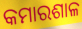
କମାରଶାଳ